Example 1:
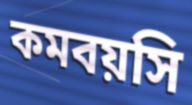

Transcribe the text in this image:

কমবয়সি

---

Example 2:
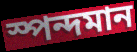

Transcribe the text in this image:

স্পন্দমান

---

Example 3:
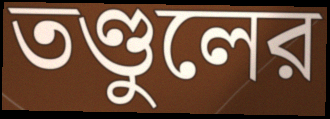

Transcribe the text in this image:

তণ্ডুলের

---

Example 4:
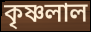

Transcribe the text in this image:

কৃষ্ণলাল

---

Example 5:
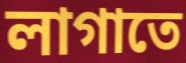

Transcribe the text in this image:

লাগাতে